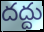
దద్దు